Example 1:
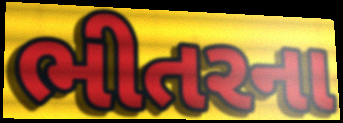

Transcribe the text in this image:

ભીતરના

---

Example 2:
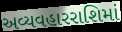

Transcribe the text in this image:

અવ્યવહારરાશિમાં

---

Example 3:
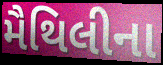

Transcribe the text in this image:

મૈથિલીના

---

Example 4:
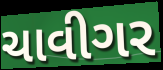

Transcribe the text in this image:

ચાવીગર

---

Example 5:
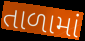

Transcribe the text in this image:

તાળામાં